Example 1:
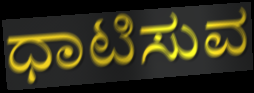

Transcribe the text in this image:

ಧಾಟಿಸುವ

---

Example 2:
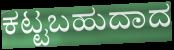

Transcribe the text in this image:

ಕಟ್ಟಬಹುದಾದ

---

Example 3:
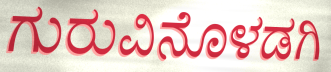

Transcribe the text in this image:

ಗುರುವಿನೊಳಡಗಿ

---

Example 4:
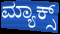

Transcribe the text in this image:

ಮ್ಯಾಕ್ಸ್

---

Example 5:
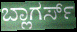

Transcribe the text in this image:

ಬ್ಲಾಗರ್ಸ್